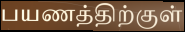
பயணத்திற்குள்